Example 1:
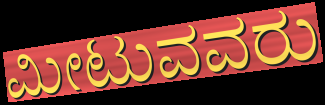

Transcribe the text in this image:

ಮೀಟುವವರು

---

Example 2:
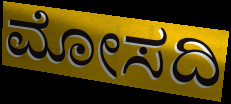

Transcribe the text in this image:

ಮೋಸದಿ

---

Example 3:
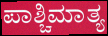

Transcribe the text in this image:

ಪಾಶ್ಚಿಮಾತ್ಯ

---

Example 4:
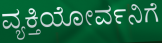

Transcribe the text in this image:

ವ್ಯಕ್ತಿಯೋರ್ವನಿಗೆ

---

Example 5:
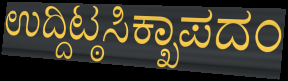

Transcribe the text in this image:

ಉದ್ದಿಟ್ಠಸಿಕ್ಖಾಪದಂ